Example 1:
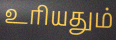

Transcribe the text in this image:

உரியதும்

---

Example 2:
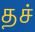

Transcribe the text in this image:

தச்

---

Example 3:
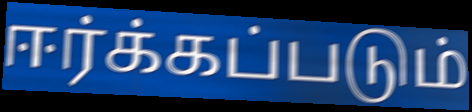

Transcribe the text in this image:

ஈர்க்கப்படும்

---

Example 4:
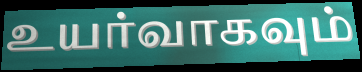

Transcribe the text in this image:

உயர்வாகவும்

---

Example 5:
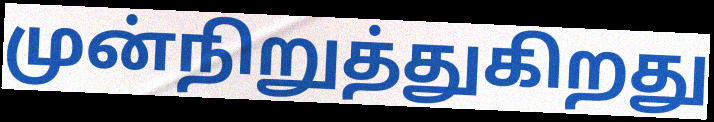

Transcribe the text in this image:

முன்நிறுத்துகிறது